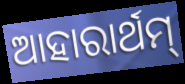
ଆହାରାର୍ଥମ୍